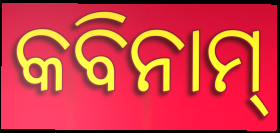
କବିନାମ୍